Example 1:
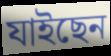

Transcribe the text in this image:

যাইছেন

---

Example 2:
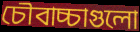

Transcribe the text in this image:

চৌবাচ্চাগুলো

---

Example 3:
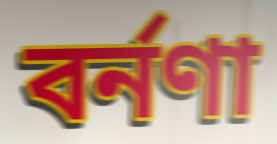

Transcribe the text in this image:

বর্নণা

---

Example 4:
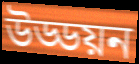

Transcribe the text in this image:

উড্ডয়ন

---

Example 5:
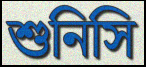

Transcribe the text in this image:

শুনিসি